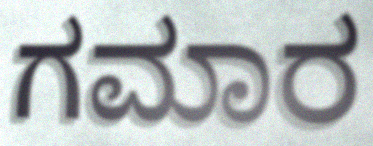
ಗಮಾರ